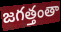
జగత్తంతా